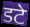
डटे